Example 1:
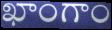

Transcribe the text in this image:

ఖాంగాం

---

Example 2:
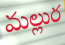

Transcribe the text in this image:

మల్లుర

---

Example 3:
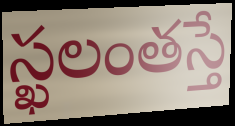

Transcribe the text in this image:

స్ఖలంతస్తే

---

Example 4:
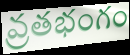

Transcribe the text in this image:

వ్రతభంగం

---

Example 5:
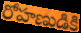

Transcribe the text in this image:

రోహణుడికి